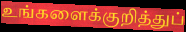
உங்களைக்குறித்துப்